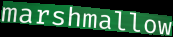
marshmallow